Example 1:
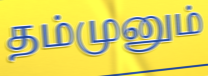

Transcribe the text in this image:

தம்முனும்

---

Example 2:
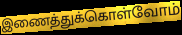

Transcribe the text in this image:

இணைத்துக்கொள்வோம்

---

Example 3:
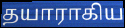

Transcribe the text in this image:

தயாராகிய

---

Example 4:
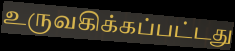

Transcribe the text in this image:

உருவகிக்கப்பட்டது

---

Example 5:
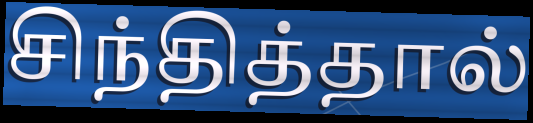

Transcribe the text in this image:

சிந்தித்தால்